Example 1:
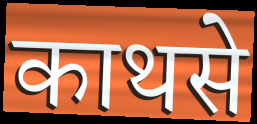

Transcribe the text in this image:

काथसे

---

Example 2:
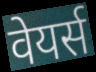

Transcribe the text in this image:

वेयर्स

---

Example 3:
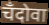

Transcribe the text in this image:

चँदोवा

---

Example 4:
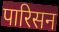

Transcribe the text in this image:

पारिसन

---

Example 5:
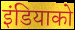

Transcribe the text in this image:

इंडियाको